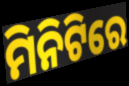
ମିନିଟିରେ